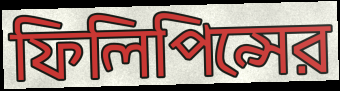
ফিলিপিন্সের